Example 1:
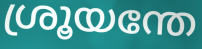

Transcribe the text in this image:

ശ്രൂയന്തേ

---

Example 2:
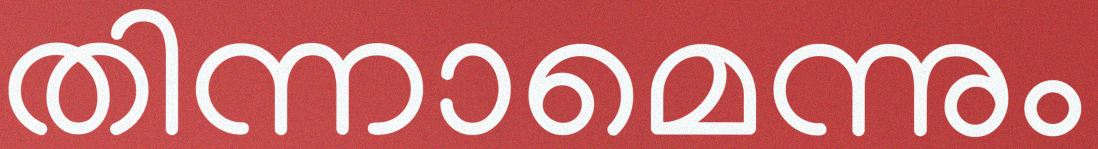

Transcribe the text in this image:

തിന്നാമെന്നും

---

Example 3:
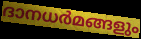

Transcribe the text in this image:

ദാനധർമങ്ങളും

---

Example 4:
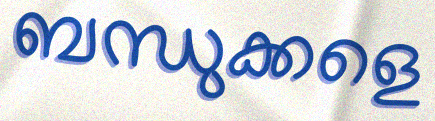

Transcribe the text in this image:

ബന്ധുക്കളെ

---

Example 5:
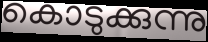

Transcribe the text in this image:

കൊടുക്കുന്നു